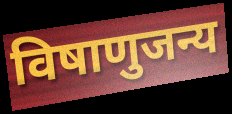
विषाणुजन्य